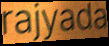
rajyada